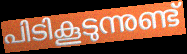
പിടികൂടുന്നുണ്ട്